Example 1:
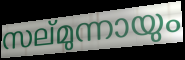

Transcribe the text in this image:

സല്മുന്നായും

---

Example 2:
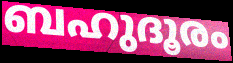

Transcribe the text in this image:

ബഹുദൂരം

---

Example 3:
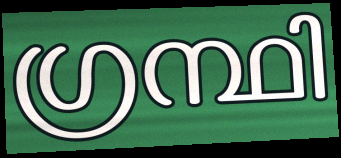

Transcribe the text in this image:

ഗ്രന്ഥി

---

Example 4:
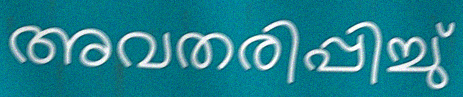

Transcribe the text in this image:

അവതരിപ്പിച്ചു്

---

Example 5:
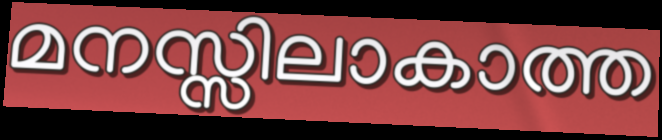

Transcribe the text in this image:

മനസ്സിലാകാത്ത